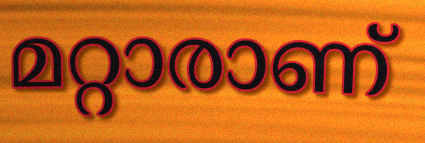
മറ്റാരാണ്